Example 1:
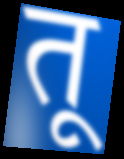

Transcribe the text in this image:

तू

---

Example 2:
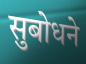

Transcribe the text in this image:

सुबोधने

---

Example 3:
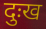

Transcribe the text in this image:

दुःख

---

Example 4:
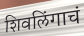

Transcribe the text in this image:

शिवलिंगाचं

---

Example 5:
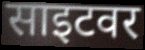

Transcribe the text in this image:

साइटवर